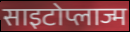
साइटोप्लाज्म